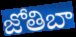
జోతిబా